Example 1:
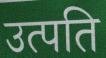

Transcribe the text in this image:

उत्पति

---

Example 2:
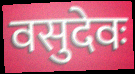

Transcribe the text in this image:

वसुदेवः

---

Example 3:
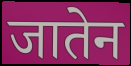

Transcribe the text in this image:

जातेन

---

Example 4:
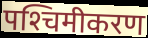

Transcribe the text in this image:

पश्चिमीकरण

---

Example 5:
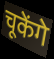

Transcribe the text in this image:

चूकेंगे